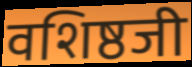
वशिष्ठजी